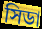
সিডা